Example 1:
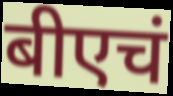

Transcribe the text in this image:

बीएचं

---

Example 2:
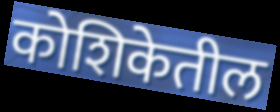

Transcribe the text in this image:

कोशिकेतील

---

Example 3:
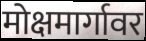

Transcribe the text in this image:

मोक्षमार्गावर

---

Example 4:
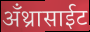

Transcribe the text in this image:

अँथ्रासाईट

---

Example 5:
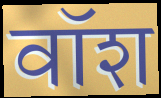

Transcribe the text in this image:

वॉश